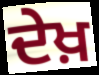
ਦੇਖ਼